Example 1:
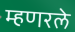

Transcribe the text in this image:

म्हणरले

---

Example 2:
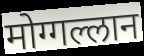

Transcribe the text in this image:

मोग्गल्लान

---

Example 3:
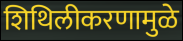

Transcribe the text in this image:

शिथिलीकरणामुळे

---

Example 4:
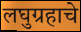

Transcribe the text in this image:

लघुग्रहाचे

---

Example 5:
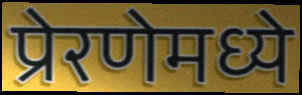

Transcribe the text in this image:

प्रेरणेमध्ये